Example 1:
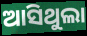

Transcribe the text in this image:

ଆସିଥୁଲା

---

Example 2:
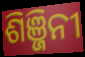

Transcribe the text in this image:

ଶିଞ୍ଜିନୀ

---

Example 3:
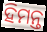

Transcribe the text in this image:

ହିମନ୍ତ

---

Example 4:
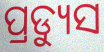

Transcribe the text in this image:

ପ୍ରଡ୍ୟୁସ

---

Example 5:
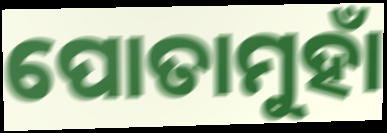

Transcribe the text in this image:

ପୋତାମୁହାଁ